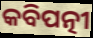
କବିପତ୍ନୀ